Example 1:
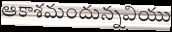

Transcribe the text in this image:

ఆకాశమందున్నవియు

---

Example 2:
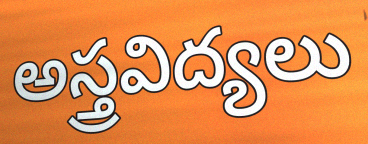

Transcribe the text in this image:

అస్త్రవిద్యలు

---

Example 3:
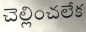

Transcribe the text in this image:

చెల్లించలేక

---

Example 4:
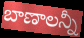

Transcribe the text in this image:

బాణాలన్నీ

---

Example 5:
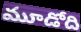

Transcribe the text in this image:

మూడోది